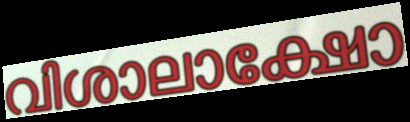
വിശാലാക്ഷോ